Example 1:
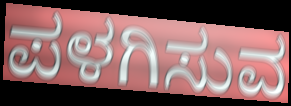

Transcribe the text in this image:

ಪಳಗಿಸುವ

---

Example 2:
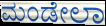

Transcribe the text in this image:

ಮಂಡೇಲಾ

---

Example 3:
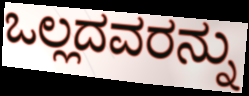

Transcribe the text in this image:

ಒಲ್ಲದವರನ್ನು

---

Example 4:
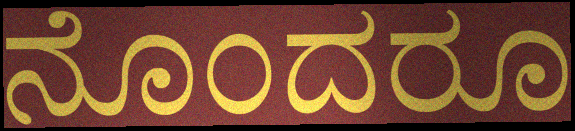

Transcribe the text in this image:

ನೊಂದರೂ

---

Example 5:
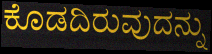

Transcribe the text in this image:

ಕೊಡದಿರುವುದನ್ನು